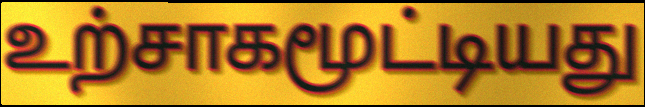
உற்சாகமூட்டியது